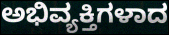
ಅಭಿವ್ಯಕ್ತಿಗಳಾದ